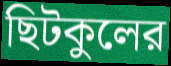
ছিটকুলের